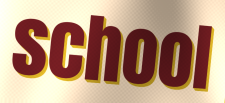
school